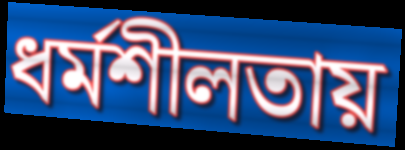
ধর্মশীলতায়